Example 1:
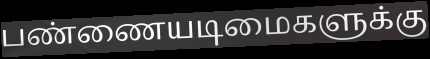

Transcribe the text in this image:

பண்ணையடிமைகளுக்கு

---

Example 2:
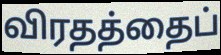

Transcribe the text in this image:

விரதத்தைப்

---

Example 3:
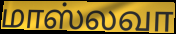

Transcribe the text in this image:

மாஸ்லவா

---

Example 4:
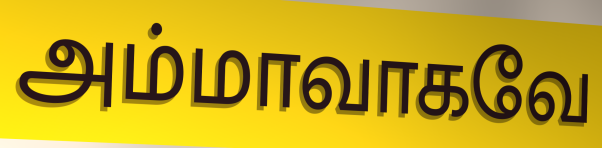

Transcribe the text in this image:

அம்மாவாகவே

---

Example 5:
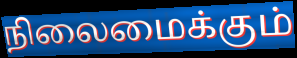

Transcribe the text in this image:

நிலைமைக்கும்